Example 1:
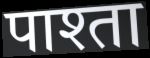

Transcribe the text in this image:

पाश्ता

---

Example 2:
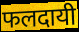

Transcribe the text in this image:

फलदायी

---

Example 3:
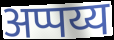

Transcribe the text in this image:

अप्पय्य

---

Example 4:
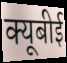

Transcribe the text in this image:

क्यूबीई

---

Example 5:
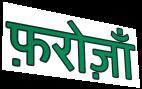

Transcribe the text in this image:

फ़रोज़ाँ